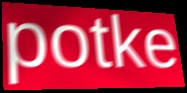
potke